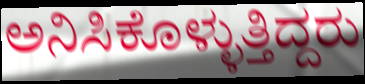
ಅನಿಸಿಕೊಳ್ಳುತ್ತಿದ್ದರು